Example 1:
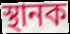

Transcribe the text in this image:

স্থানক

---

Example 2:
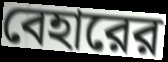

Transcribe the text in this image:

বেহারের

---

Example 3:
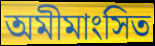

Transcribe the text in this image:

অমীমাংসিত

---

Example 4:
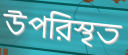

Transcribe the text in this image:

উপরিস্থত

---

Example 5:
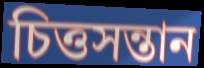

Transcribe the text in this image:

চিত্তসন্তান